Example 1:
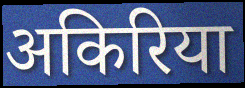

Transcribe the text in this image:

अकिरिया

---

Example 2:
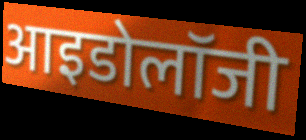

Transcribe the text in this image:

आइडोलॉजी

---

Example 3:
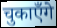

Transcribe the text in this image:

चुकाएँगे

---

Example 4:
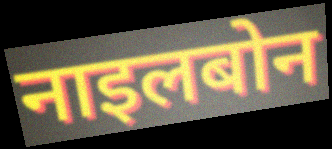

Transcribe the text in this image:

नाइलबोन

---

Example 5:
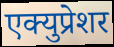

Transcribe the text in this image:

एक्युप्रेशर